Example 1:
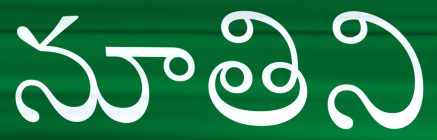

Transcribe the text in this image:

నూతిని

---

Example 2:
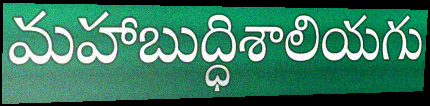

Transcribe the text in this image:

మహాబుద్ధిశాలియగు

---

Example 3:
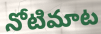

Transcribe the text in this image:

నోటిమాట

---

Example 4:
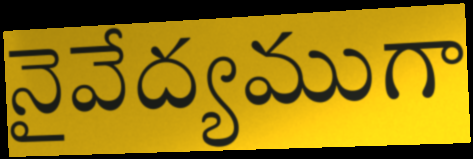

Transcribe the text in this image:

నైవేద్యముగా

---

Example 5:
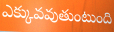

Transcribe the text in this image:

ఎక్కువవుతుంటుంది